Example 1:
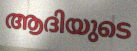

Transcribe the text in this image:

ആദിയുടെ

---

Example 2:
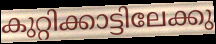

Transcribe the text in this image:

കുറ്റിക്കാട്ടിലേക്കു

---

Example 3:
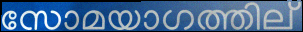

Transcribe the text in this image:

സോമയാഗത്തില്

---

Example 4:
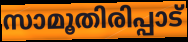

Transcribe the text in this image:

സാമൂതിരിപ്പാട്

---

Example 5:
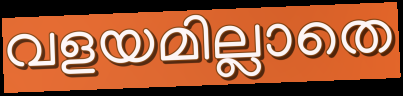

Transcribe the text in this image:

വളയമില്ലാതെ